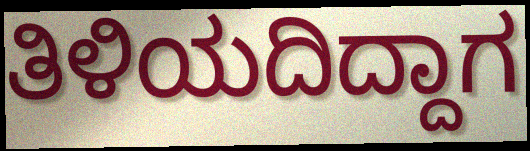
ತಿಳಿಯದಿದ್ದಾಗ